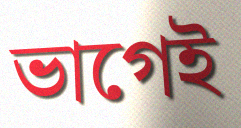
ভাগেই